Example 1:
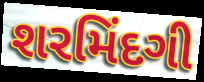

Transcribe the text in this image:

શરમિંદગી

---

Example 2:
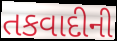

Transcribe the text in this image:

તકવાદીની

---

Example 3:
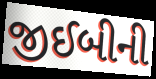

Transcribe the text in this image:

જીઈબીની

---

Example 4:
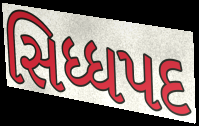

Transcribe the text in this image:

સિધ્ધપદ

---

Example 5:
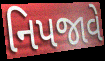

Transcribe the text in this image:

નિપજાવે